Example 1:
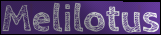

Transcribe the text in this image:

Melilotus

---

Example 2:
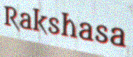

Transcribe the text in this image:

Rakshasa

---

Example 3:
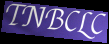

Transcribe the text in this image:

TNBCLC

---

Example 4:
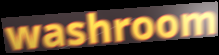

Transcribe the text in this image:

washroom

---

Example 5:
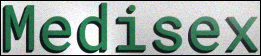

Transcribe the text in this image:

Medisex